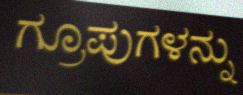
ಗ್ರೂಪುಗಳನ್ನು